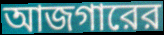
আজগারের